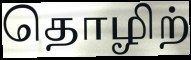
தொழிற்